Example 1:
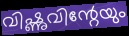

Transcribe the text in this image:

വിഷ്ണുവിന്റേയും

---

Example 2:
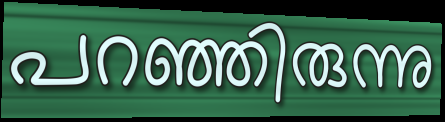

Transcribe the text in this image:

പറഞ്ഞിരുന്നു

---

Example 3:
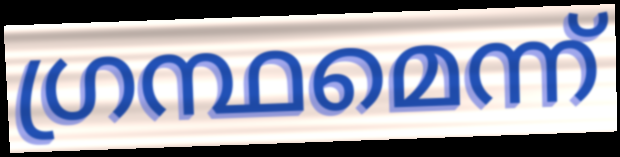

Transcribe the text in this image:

ഗ്രന്ഥമെന്ന്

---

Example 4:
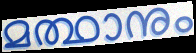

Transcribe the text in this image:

മത്ഥാനും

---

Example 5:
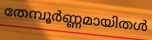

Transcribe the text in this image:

തേമ്പൂർണ്ണമായിതൾ